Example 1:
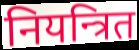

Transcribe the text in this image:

नियन्त्रित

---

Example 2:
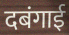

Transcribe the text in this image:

दबंगाई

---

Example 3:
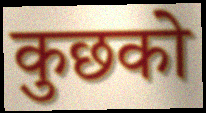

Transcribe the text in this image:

कुछको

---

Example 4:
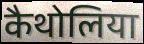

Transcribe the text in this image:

कैथोलिया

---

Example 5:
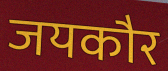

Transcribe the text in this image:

जयकौर